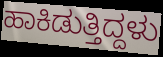
ಹಾಕಿಡುತ್ತಿದ್ದಳು